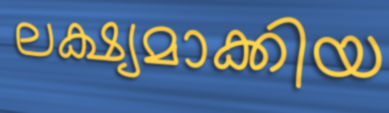
ലക്ഷ്യമാക്കിയ